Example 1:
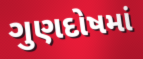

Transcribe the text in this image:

ગુણદોષમાં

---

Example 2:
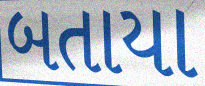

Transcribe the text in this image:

બતાયા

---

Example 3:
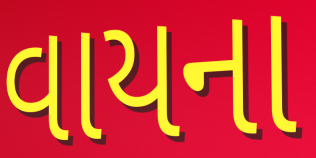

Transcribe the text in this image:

વાયના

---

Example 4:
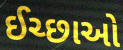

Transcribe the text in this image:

ઈચ્છાઓ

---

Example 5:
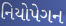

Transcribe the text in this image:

નિયોપેગન